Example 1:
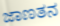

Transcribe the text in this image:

ಜಾಣತನ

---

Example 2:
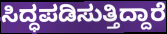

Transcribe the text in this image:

ಸಿದ್ಧಪಡಿಸುತ್ತಿದ್ದಾರೆ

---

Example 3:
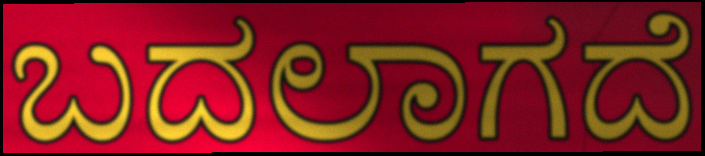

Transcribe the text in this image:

ಬದಲಾಗದೆ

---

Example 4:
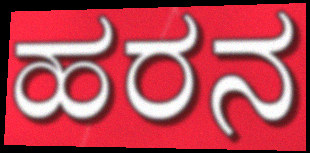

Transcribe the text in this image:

ಹರನ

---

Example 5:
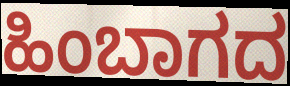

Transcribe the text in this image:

ಹಿಂಬಾಗದ